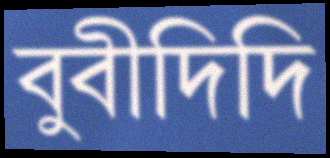
বুবীদিদি